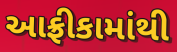
આફ્રીકામાંથી